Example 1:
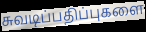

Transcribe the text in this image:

சுவடிப்பதிப்புகளை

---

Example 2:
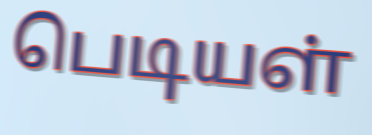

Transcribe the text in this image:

பெடியள்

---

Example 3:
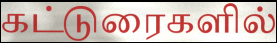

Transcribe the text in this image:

கட்டுரைகளில்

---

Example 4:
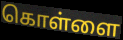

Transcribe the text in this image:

கொள்ளை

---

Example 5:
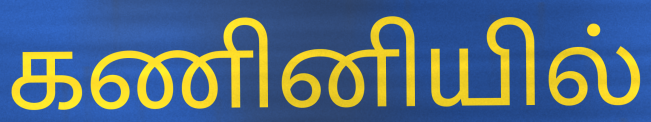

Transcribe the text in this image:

கணினியில்